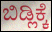
ಬಿಡ್ಲಿಕ್ಕೆ